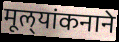
मूल्यांकनाने